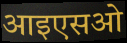
आइएसओ